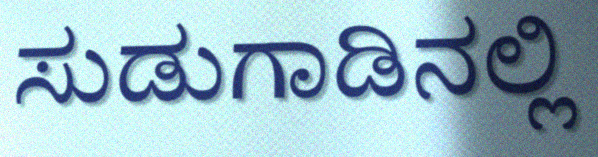
ಸುಡುಗಾಡಿನಲ್ಲಿ